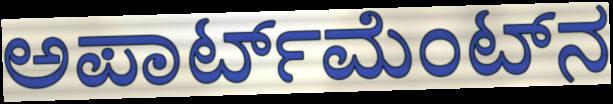
ಅಪಾರ್ಟ್‌ಮೆಂಟ್‌ನ